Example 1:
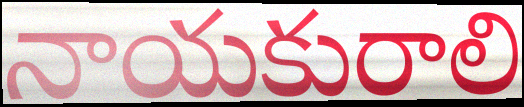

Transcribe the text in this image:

నాయకురాలి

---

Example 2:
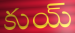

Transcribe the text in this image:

కుయ్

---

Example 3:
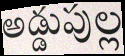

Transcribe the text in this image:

అడ్డుపుల్ల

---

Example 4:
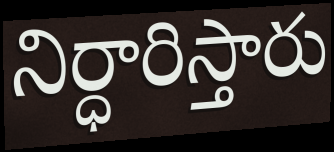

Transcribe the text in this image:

నిర్ధారిస్తారు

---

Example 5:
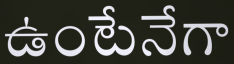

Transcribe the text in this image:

ఉంటేనేగా